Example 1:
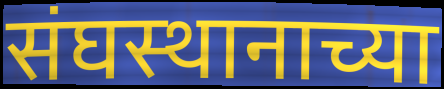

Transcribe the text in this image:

संघस्थानाच्या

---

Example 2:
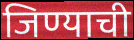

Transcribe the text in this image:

जिण्याची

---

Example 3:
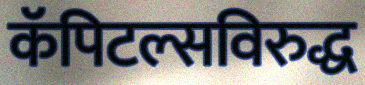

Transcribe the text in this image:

कॅपिटल्सविरुद्ध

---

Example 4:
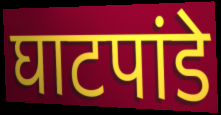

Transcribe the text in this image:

घाटपांडे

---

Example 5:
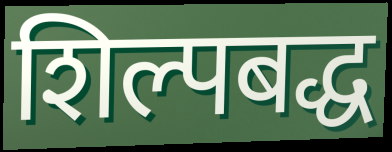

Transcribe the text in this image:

शिल्पबद्ध